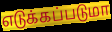
எடுக்கப்படுமா